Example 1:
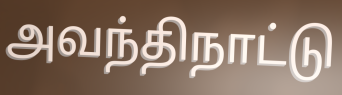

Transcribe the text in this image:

அவந்திநாட்டு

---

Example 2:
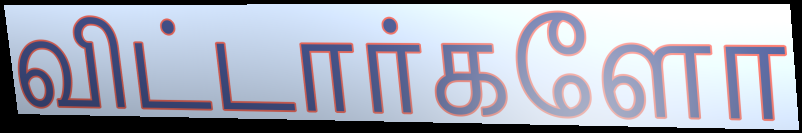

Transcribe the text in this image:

விட்டார்களோ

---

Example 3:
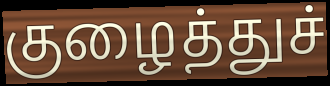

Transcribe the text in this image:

குழைத்துச்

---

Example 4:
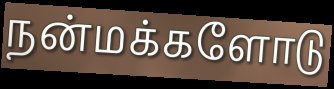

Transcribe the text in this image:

நன்மக்களோடு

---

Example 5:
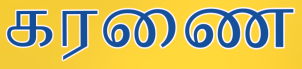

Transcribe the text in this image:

கரணை